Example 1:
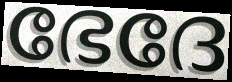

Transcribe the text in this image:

ഭേദേ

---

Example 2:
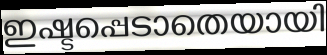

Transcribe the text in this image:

ഇഷ്ടപ്പെടാതെയായി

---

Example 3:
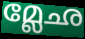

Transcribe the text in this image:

മ്ലേഛ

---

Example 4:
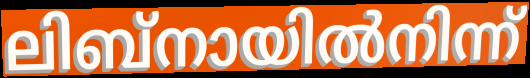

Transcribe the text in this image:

ലിബ്നായിൽനിന്ന്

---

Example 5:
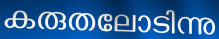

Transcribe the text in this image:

കരുതലോടിന്നു